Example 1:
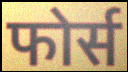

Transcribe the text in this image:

फोर्स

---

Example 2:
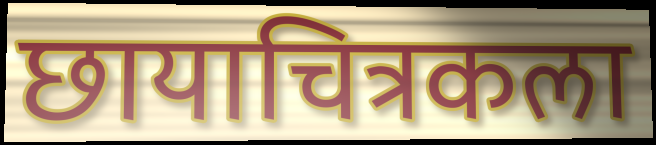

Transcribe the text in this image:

छायाचित्रकला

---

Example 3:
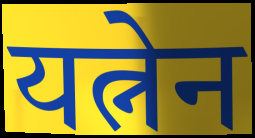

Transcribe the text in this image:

यत्नेन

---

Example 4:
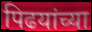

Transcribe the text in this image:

पिढयांच्या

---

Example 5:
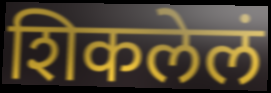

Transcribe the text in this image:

शिकलेलं